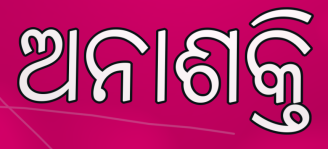
ଅନାଶକ୍ତି